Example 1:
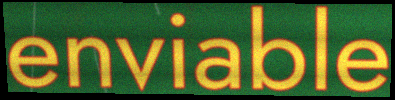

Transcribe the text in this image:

enviable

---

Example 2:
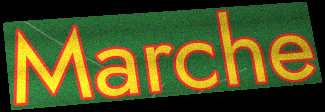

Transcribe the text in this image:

Marche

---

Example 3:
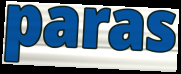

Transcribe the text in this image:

paras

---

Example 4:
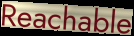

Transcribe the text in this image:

Reachable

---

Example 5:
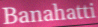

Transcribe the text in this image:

Banahatti